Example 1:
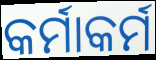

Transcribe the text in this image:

କର୍ମାକର୍ମ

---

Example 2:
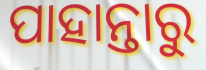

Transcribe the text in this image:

ପାହାନ୍ତାରୁ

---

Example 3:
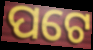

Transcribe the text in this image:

ପଟେ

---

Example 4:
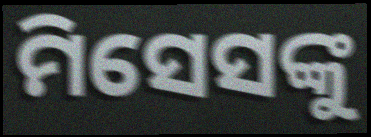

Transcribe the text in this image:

ମିସେସଙ୍କୁ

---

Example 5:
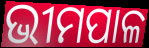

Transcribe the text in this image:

ଭୀମପାଳ